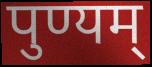
पुण्यम्